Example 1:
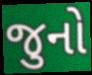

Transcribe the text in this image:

જુનો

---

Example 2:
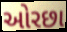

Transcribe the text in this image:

ઓરછા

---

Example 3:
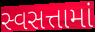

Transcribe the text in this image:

સ્વસત્તામાં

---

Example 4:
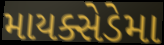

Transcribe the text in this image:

માયક્સેડેમા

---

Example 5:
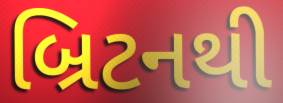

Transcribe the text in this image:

બ્રિટનથી